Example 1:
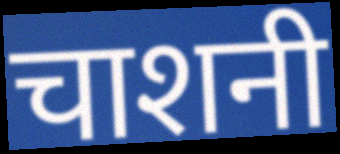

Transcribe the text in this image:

चाशनी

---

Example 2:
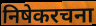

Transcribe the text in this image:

निषेकरचना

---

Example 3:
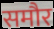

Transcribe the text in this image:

समौर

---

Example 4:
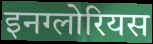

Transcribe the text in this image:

इनग्लोरियस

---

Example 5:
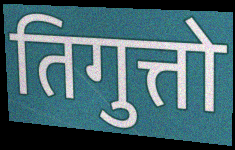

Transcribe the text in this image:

तिगुत्तो